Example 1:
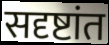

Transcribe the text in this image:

सदृष्टांत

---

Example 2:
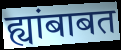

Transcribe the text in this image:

ह्यांबाबत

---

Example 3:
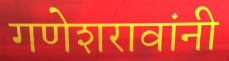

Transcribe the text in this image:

गणेशरावांनी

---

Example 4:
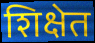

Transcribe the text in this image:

शिक्षेत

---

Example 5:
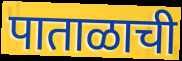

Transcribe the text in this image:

पाताळाची